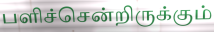
பளிச்சென்றிருக்கும்